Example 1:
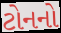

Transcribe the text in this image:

ટોનનો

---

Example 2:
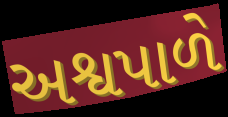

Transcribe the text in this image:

અશ્વપાળે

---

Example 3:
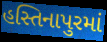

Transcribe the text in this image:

હસ્તિનાપુરમાં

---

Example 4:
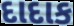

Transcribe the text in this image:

દાદાક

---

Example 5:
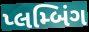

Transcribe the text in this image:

પ્લમ્બિંગ